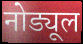
नोड्यूल